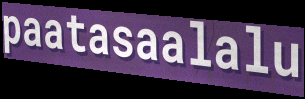
paatasaalalu